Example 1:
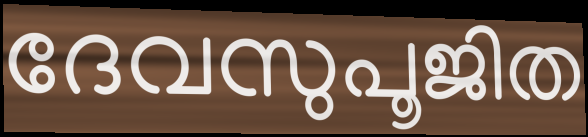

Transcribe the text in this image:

ദേവസുപൂജിത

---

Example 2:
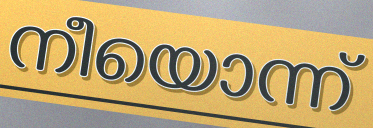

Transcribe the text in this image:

നീയൊന്ന്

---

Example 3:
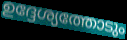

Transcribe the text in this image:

ഉദ്ദേശ്യത്തോടും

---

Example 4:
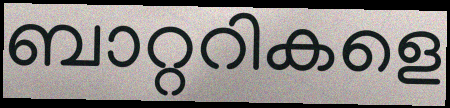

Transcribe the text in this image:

ബാറ്ററികളെ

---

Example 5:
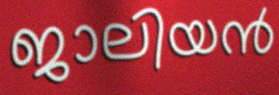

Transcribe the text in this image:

ജാലിയൻ